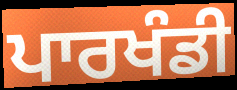
ਪਾਰਖੰਡੀ